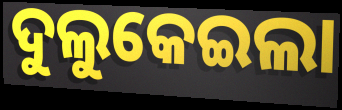
ଦୁଲୁକେଇଲା